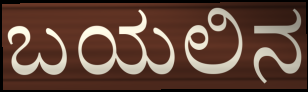
ಬಯಲಿನ